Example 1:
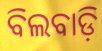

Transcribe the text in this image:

ବିଲବାଡ଼ି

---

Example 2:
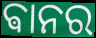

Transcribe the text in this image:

ଵାନର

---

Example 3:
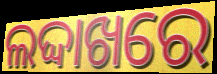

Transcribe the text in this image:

ଲଦ୍ଦାଖରେ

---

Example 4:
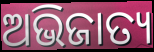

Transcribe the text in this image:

ଅଭିଜାତ୍ୟ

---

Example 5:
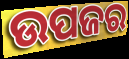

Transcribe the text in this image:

ଉପଜର